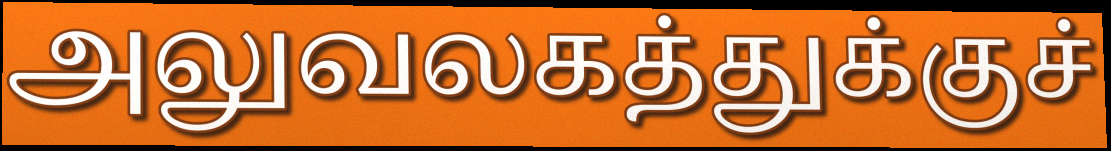
அலுவலகத்துக்குச்